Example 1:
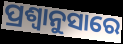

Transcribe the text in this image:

ପ୍ରଶ୍ବାନୁସାରେ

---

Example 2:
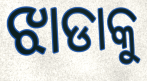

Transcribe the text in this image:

ଝାଡାକୁ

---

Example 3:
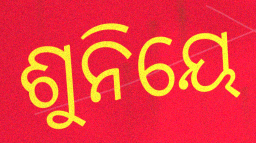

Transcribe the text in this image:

ଶୁନିୟେ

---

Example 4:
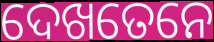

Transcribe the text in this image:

ଦେଖତେନେ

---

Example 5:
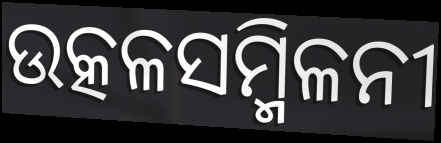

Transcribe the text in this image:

ଉତ୍କଳସମ୍ମିଳନୀ